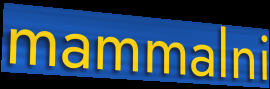
mammalni